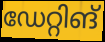
ഡേറ്റിങ്